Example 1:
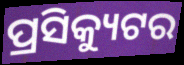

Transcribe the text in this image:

ପ୍ରସିକ୍ୟୁଟର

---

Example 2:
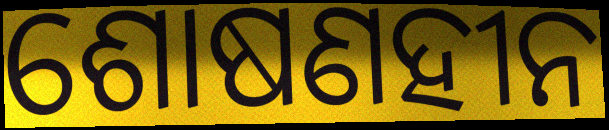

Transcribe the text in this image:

ଶୋଷଣହୀନ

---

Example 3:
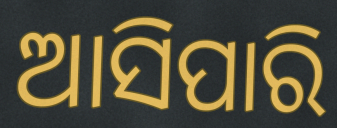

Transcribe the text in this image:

ଆସିପାରି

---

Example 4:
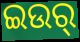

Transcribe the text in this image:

ଇଉର୍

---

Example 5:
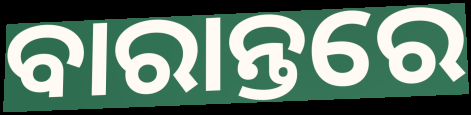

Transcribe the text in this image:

ବାରାନ୍ତରେ